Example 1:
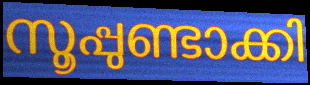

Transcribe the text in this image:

സൂപ്പുണ്ടാക്കി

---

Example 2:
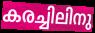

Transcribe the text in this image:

കരച്ചിലിനു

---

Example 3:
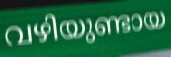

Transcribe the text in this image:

വഴിയുണ്ടായ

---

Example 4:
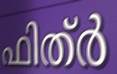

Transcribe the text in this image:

ഫിത്ർ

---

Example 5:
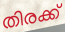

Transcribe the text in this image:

തിരക്ക്